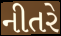
નીતરે